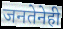
जनतेनेही